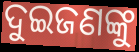
ଦୁଇଜଣଙ୍କୁ